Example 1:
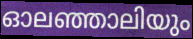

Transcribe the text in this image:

ഓലഞ്ഞാലിയും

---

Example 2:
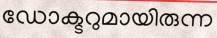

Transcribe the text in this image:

ഡോക്ടറുമായിരുന്ന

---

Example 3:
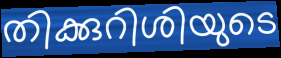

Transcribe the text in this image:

തിക്കുറിശിയുടെ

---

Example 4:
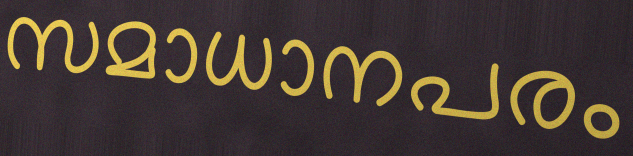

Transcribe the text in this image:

സമാധാനപരം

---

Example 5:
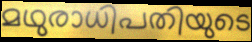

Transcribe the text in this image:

മഥുരാധിപതിയുടെ